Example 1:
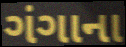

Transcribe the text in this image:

ગંગાના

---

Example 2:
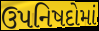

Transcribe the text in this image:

ઉપનિષદોમાં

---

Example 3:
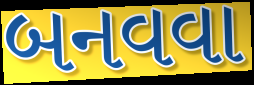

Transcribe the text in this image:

બનવવા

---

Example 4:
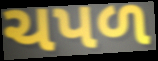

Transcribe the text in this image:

ચપળ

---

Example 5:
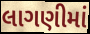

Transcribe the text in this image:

લાગણીમાં